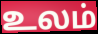
உலம்